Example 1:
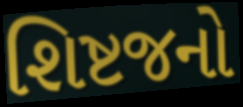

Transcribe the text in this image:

શિષ્ટજનો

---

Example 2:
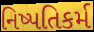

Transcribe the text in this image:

નિષ્પતિકર્મ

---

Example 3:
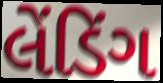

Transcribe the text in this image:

લેંડિંગ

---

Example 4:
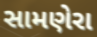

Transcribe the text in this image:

સામણેરા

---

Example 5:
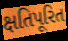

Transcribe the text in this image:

ક્ષતિપૂરિત